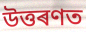
উত্তৰণত